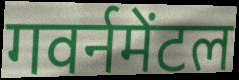
गवर्नमेंटल